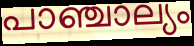
പാഞ്ചാല്യം